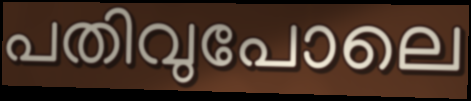
പതിവുപോലെ